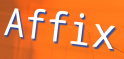
Affix